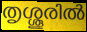
തൃശ്ശൂരിൽ